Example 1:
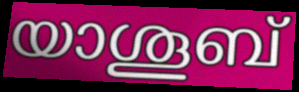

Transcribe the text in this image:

യാശൂബ്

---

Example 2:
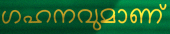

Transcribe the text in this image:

ഗഹനവുമാണ്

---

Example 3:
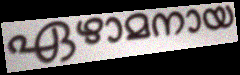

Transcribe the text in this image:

ഏഴാമനായ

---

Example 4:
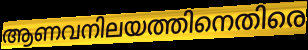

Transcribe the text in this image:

ആണവനിലയത്തിനെതിരെ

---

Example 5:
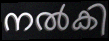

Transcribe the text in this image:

നൽകി